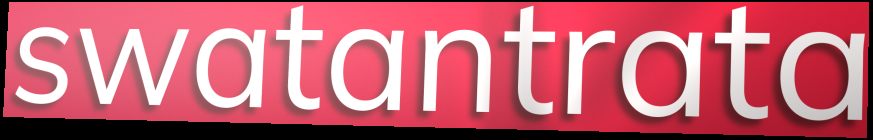
swatantrata